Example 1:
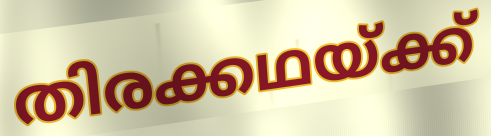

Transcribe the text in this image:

തിരക്കഥയ്ക്ക്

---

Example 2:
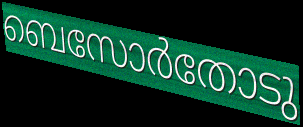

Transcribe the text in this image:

ബെസോർതോടു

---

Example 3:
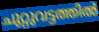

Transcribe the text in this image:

ചുറ്റുവട്ടത്തിൽ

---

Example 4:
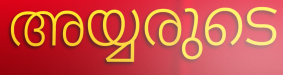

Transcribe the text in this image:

അയ്യരുടെ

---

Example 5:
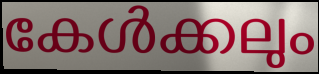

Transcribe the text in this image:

കേൾക്കലും